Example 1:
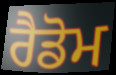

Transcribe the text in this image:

ਰੈਡੋਮ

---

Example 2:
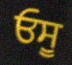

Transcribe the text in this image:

ਓਸੂ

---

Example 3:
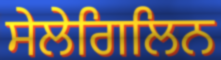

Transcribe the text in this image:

ਸੇਲੇਗਿਲਿਨ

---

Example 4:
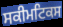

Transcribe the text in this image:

ਸਕੀਮਟਿਕਸ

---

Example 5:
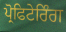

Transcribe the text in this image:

ਪ੍ਰੋਫਿਟੇਰਿੰਗ